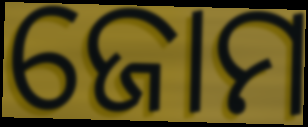
ଜୋମ